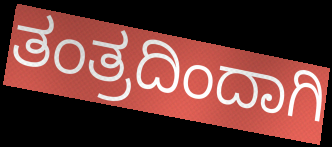
ತಂತ್ರದಿಂದಾಗಿ